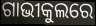
ଗାଭୀକୁଲରେ